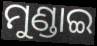
ମୁଣ୍ଡାଇ